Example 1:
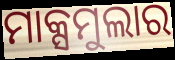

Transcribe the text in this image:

ମାକ୍ସମୁଲାର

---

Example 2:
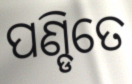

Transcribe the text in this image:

ପଣ୍ଡିତେ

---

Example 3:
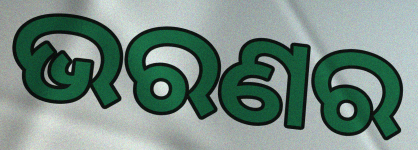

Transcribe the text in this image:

ଭରଣର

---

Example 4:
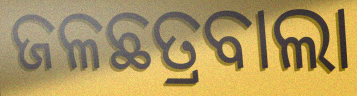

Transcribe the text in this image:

ଜଳଛତ୍ରବାଲା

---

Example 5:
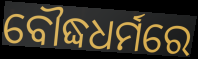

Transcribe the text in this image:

ବୌଦ୍ଧଧର୍ମରେ